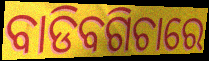
ବାଡିବଗିଚାରେ